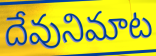
దేవునిమాట